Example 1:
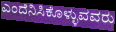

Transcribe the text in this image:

ಎಂದೆನಿಸಿಕೊಳ್ಳುವವರು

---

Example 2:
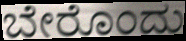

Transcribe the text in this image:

ಬೇರೊಂದು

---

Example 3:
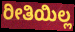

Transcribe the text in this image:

ರೀತಿಯಿಲ್ಲ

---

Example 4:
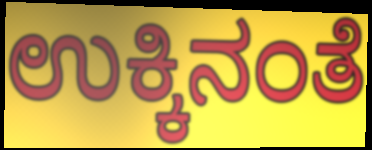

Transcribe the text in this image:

ಉಕ್ಕಿನಂತೆ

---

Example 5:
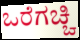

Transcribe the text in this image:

ಒರೆಗಚ್ಚಿ